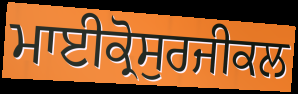
ਮਾਈਕ੍ਰੋਸੁਰਜੀਕਲ